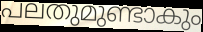
പലതുമുണ്ടാകും